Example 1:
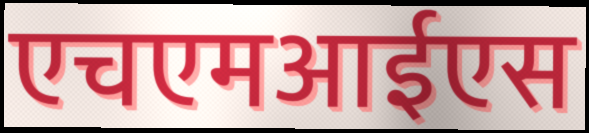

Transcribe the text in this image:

एचएमआईएस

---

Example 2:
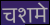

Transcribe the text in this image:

चशमे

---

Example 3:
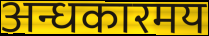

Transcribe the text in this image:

अन्धकारमय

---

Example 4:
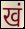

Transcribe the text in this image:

खं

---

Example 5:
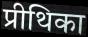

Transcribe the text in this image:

प्रीथिका